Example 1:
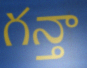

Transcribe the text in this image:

గన్తా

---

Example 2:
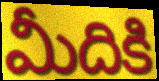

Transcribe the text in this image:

మీదికి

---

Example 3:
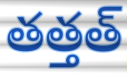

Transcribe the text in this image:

తత్తత్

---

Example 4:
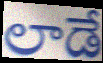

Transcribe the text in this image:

లాడే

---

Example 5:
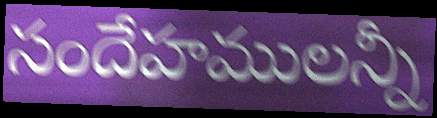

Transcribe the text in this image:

సందేహములన్నీ